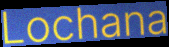
Lochana